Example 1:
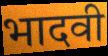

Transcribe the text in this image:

भादवी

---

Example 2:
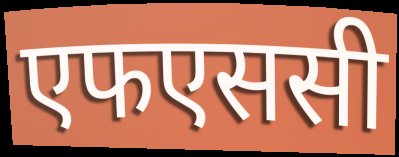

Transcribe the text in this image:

एफएससी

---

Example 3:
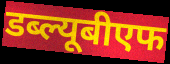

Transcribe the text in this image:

डब्ल्यूबीएफ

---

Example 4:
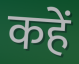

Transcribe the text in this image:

कहें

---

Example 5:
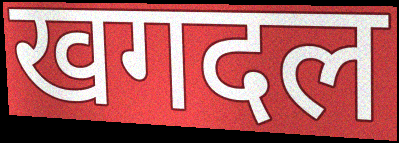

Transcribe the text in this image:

खगदल